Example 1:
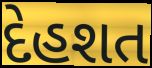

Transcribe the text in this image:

દેહશત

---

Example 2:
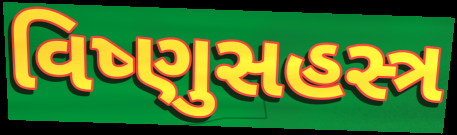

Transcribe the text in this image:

વિષ્ણુસહસ્ત્ર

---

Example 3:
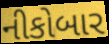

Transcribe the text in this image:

નીકોબાર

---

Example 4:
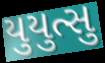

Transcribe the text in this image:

યુયુત્સુ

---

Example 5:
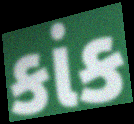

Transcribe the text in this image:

કાંક